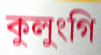
কুলুংগি